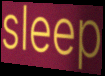
sleep